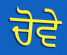
ਚੋਵੇ